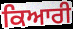
ਕਿਆਰੀ